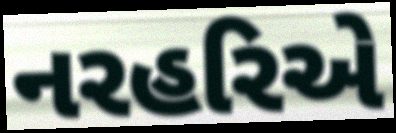
નરહરિએ